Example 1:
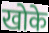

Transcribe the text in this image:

खोके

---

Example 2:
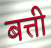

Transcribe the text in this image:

बत्ती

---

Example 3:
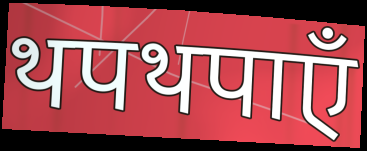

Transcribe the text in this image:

थपथपाएँ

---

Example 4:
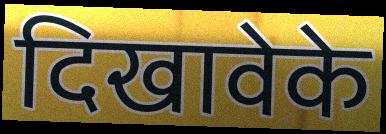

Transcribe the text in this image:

दिखावेके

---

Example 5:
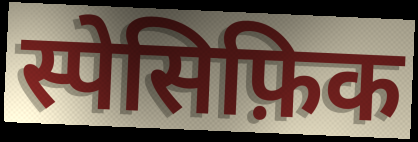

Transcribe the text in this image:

स्पेसिफ़िक